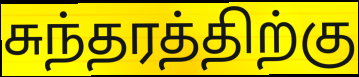
சுந்தரத்திற்கு